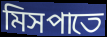
মিসপাতে